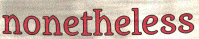
nonetheless